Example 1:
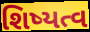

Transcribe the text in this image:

શિષ્યત્વ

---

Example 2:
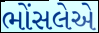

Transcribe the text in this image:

ભોંસલેએ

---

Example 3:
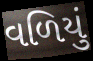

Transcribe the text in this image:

વળિયું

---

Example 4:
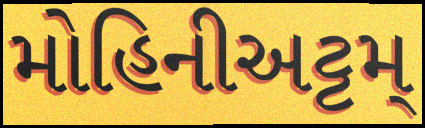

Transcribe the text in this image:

મોહિનીઅટ્ટમ્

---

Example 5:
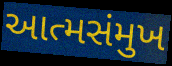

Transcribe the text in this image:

આત્મસંમુખ